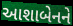
આશાબેનને